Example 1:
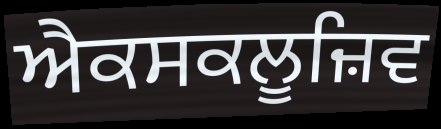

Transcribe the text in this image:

ਐਕਸਕਲੂਜ਼ਿਵ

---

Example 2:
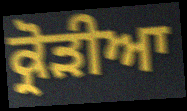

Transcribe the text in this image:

ਕ੍ਰੋੜੀਆ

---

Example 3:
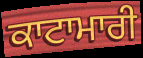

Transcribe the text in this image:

ਕਾਟਾਮਾਰੀ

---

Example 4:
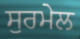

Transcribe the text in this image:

ਸੁਰਮੇਲ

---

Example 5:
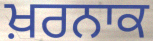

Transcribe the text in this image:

ਖ਼ਰਨਾਕ